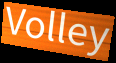
Volley